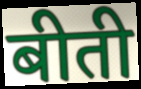
बीती